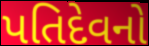
પતિદેવનો